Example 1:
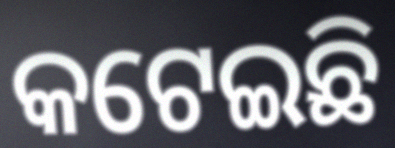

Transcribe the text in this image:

କଟେଇଛି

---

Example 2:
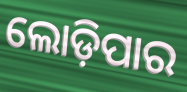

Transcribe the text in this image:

ଲୋଡ଼ିପାର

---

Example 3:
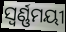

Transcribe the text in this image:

ସ୍ୱର୍ଣ୍ଣମୟୀ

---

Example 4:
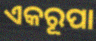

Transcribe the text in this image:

ଏକରୂପା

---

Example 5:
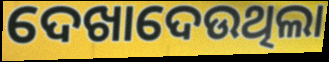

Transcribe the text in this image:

ଦେଖାଦେଉଥିଲା